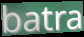
batra